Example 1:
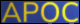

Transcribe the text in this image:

APOC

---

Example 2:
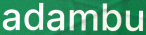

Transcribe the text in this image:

adambu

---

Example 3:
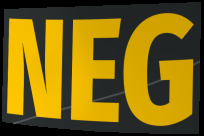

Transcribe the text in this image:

NEG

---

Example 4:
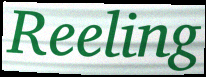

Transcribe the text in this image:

Reeling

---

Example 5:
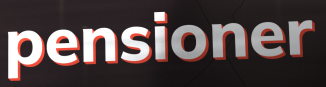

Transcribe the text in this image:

pensioner